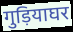
गुड़ियाघर